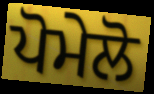
ਪੋਮੇਲੋ